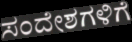
ಸಂದೇಶಗಳಿಗೆ